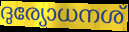
ദുര്യോധനശ്